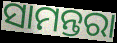
ସାମନ୍ତରା